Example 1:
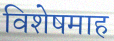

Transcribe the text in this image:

विशेषमाह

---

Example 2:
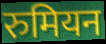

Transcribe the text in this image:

रुमियन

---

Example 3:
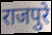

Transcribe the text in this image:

राजपुरे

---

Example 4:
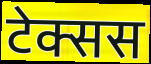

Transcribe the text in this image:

टेक्सस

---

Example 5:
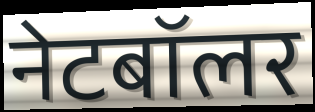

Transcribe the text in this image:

नेटबॉलर